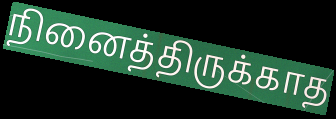
நினைத்திருக்காத